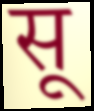
सू